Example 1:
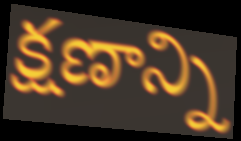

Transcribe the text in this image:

క్షణాన్ని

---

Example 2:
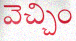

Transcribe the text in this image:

వెచ్చిం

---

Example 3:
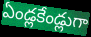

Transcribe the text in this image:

ఏండ్లకేండ్లుగా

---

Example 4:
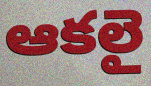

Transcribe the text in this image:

ఆకలై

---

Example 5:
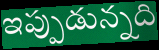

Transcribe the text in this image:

ఇప్పుడున్నది